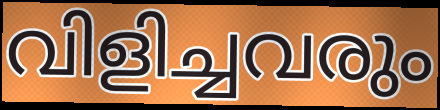
വിളിച്ചവരും